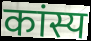
कांस्‍य